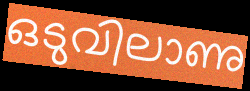
ഒടുവിലാണു